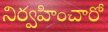
నిర్వహించారో